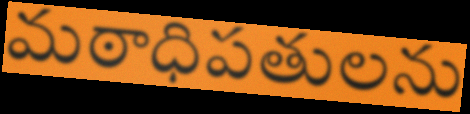
మఠాధిపతులను